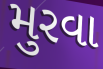
મુરવા